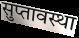
सुप्तावस्था